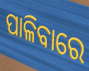
ପାଳିବାରେ